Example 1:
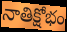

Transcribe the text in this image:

నాతిక్షోభం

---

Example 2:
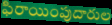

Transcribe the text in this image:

ఫిరాయింపుదారుల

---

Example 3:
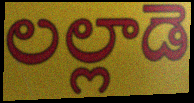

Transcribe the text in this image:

లల్లాడె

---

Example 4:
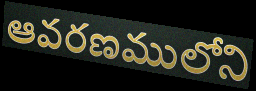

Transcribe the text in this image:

ఆవరణములోని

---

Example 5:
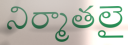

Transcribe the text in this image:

నిర్మాతలై